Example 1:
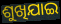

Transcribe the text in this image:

ଶୁଖିଯାଇ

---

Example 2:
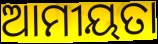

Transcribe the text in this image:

ଆମୀୟତା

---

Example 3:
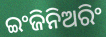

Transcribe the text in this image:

ଇଂଜିନିଅରିଂ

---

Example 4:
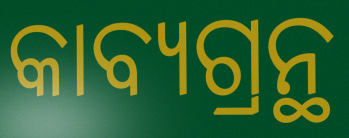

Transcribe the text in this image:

କାବ୍ୟଗ୍ରନ୍ଥ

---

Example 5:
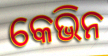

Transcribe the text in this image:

କେଭିନ